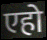
एहो